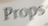
Props